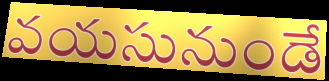
వయసునుండే